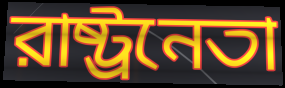
রাষ্ট্রনেতা